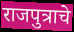
राजपुत्राचे